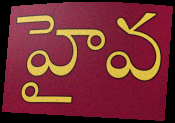
హైవ